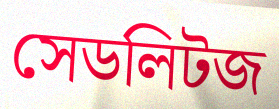
সেডলিটজ